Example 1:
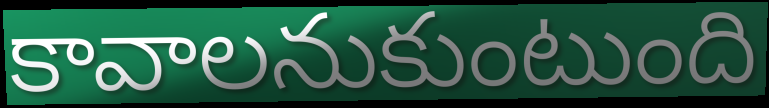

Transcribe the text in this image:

కావాలనుకుంటుంది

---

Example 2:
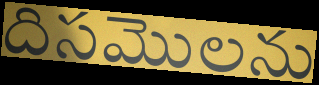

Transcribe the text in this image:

దిసమొలను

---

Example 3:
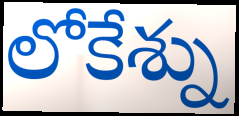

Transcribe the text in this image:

లోకేశ్ను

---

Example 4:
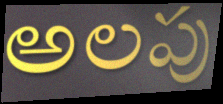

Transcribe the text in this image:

అలపు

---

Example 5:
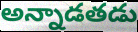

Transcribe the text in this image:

అన్నాడతడు